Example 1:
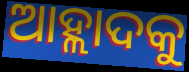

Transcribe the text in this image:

ଆହ୍ଲାଦକୁ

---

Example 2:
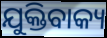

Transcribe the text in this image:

ଯୁକ୍ତିବାକ୍ୟ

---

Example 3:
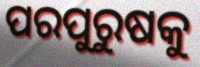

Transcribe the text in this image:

ପରପୁରୁଷକୁ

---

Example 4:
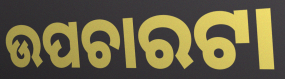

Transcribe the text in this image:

ଉପଚାରଟା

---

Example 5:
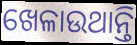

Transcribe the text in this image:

ଖେଳାଉଥାନ୍ତି